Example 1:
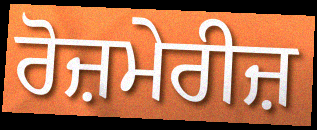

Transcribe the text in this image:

ਰੋਜ਼ਮੇਰੀਜ਼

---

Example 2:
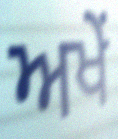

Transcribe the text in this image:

ਅਖੇਂ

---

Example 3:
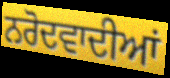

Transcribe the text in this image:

ਨਰੋਦਵਾਦੀਆਂ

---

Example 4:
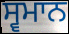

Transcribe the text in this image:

ਸ੍ਵਮਾਨ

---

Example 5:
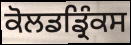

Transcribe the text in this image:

ਕੋਲਡਡ੍ਰਿੰਕਸ